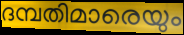
ദമ്പതിമാരെയും